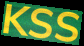
KSS